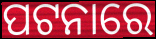
ପଟନାରେ